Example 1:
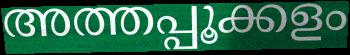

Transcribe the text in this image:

അത്തപ്പൂക്കളം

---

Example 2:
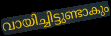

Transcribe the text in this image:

വായിച്ചിട്ടുണ്ടാകും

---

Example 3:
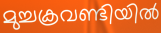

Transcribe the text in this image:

മുച്ചക്രവണ്ടിയിൽ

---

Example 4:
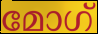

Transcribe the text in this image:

മോഗ്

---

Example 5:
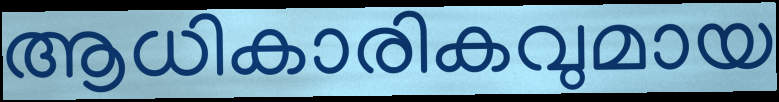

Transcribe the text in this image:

ആധികാരികവുമായ